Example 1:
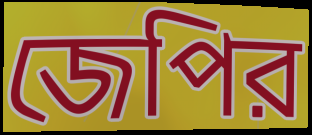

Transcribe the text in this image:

জেপির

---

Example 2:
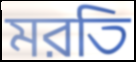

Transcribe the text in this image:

মরতি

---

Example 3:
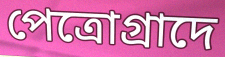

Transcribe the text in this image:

পেত্রোগ্রাদে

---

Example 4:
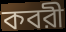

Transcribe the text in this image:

কবরী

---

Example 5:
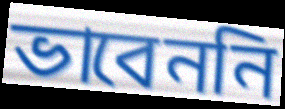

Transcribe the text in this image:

ভাবেননি